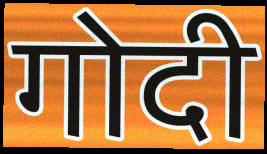
गोदी